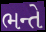
ભન્તે